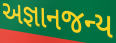
અજ્ઞાનજન્ય